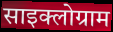
साइक्लोग्राम